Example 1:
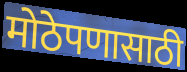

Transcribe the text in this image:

मोठेपणासाठी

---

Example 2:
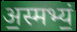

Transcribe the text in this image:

अ॒स्मभ्यं॒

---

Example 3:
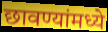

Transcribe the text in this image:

छावण्यांमध्ये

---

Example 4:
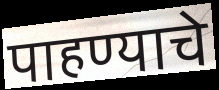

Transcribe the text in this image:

पाहण्याचे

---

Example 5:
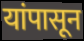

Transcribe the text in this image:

यांपासून